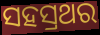
ସହସ୍ରଥର